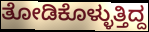
ತೋಡಿಕೊಳ್ಳುತ್ತಿದ್ದ